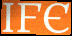
IFE